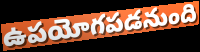
ఉపయోగపడనుంది